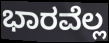
ಭಾರವೆಲ್ಲ